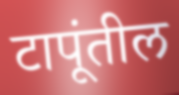
टापूंतील